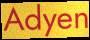
Adyen